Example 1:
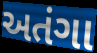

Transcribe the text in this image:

અતંગા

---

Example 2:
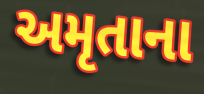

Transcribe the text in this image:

અમૃતાના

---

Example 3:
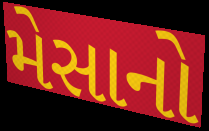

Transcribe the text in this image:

મેસાનો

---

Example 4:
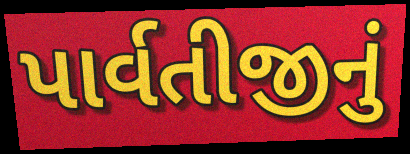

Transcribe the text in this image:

પાર્વતીજીનું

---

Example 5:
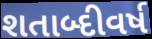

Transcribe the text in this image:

શતાબ્દીવર્ષ